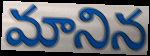
మానిన